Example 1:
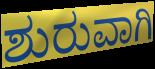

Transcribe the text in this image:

ಶುರುವಾಗಿ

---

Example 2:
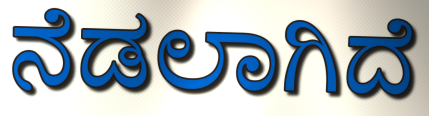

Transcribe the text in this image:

ನೆಡಲಾಗಿದೆ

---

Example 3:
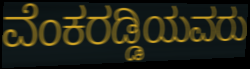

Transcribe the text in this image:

ವೆಂಕರಡ್ಡಿಯವರು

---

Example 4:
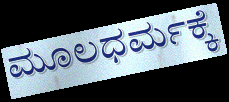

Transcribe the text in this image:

ಮೂಲಧರ್ಮಕ್ಕೆ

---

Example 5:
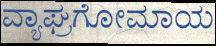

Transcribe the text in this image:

ವ್ಯಾಘ್ರಗೋಮಾಯ